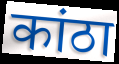
कांठा